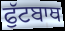
ਫੁੱਟਬਾਥ